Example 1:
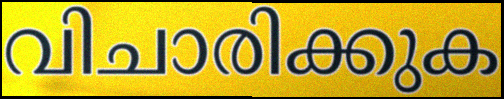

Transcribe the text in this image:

വിചാരിക്കുക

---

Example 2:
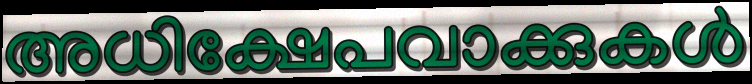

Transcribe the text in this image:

അധിക്ഷേപവാക്കുകൾ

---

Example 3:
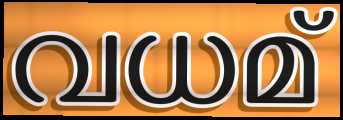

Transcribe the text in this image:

വധമ്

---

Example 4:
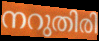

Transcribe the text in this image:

നറുതിരി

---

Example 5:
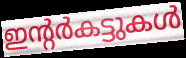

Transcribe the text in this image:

ഇന്റർകട്ടുകൾ